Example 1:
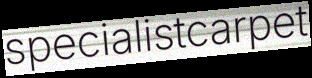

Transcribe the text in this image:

specialistcarpet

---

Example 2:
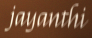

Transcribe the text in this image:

jayanthi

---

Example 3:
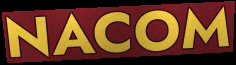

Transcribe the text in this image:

NACOM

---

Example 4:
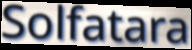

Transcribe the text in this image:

Solfatara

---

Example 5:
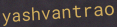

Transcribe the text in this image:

yashvantrao